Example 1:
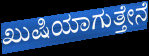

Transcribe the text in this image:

ಖುಷಿಯಾಗುತ್ತೇನೆ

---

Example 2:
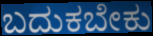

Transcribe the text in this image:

ಬದುಕಬೇಕು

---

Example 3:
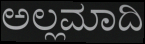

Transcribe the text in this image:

ಅಲ್ಲಮಾದಿ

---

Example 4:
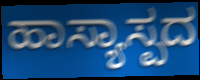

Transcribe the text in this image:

ಹಾಸ್ಯಾಸ್ಪದ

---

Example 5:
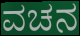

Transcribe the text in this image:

ವಚನ